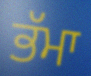
ਭੱਮਾ